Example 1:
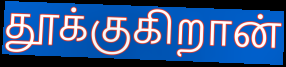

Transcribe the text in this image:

தூக்குகிறான்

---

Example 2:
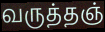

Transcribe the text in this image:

வருத்தஞ்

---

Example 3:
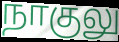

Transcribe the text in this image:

நாகுலு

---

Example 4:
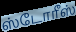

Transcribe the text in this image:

ஸ்டோரீஸ்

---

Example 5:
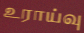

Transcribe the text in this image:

உராய்வு